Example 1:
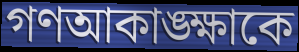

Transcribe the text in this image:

গণআকাঙ্ক্ষাকে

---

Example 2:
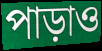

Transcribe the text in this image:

পাড়াও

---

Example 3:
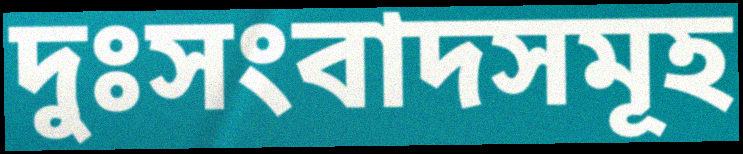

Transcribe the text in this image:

দুঃসংবাদসমূহ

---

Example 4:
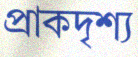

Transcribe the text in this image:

প্রাকদৃশ্য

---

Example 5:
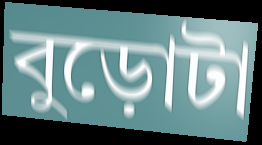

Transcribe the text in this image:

বুড়োটা